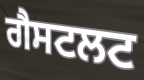
ਗੈਸਟਲਟ